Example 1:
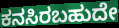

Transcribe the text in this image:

ಕನಸಿರಬಹುದೇ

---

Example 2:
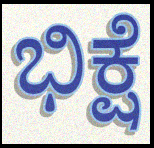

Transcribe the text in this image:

ಭಿಕ್ಷೆ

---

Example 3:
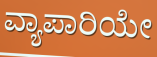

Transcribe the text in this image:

ವ್ಯಾಪಾರಿಯೇ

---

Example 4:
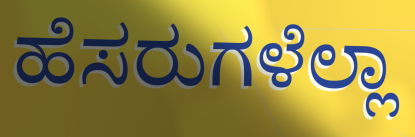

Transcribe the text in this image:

ಹೆಸರುಗಳೆಲ್ಲಾ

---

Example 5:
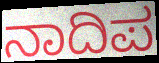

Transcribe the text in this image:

ನಾದಿಪ